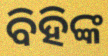
ବିହିଙ୍କ